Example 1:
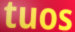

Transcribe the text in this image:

tuos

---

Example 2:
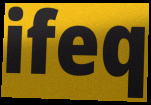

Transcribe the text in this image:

ifeq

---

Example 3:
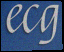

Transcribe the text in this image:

ecg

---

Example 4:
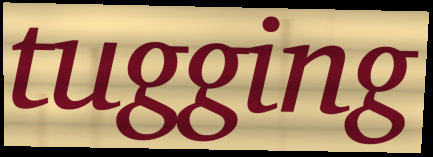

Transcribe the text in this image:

tugging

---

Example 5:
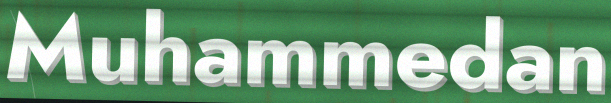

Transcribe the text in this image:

Muhammedan